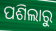
ପଶିଲାରୁ